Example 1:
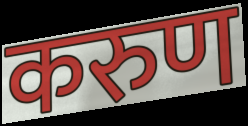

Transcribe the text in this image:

करुण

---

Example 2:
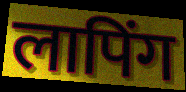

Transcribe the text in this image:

लापिंग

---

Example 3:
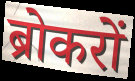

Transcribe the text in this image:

ब्रोकरों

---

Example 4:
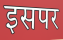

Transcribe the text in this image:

इसपर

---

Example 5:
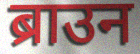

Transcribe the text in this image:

ब्राउन